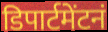
डिपार्टमेंटनं